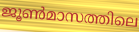
ജൂൺമാസത്തിലെ